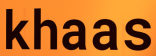
khaas